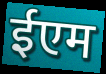
ईएम